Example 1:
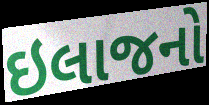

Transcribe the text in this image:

ઇલાજનો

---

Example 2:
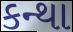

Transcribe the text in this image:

કન્થા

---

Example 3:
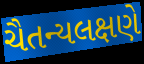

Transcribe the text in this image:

ચૈતન્યલક્ષણે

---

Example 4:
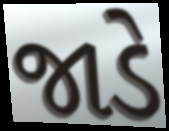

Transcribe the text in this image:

જાડે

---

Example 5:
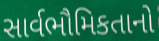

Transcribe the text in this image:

સાર્વભૌમિકતાનો